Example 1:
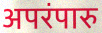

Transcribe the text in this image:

अपरंपारु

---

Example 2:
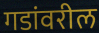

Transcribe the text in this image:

गडांवरील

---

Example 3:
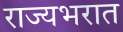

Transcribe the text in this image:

राज्यभरात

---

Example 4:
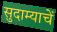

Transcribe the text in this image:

सुदाम्याचें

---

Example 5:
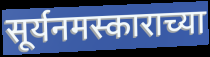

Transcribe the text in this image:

सूर्यनमस्काराच्या